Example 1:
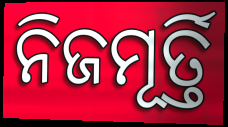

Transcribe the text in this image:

ନିଜମୂର୍ତ୍ତି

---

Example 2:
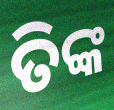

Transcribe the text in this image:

ତିଙ୍କ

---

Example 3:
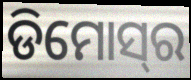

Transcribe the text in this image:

ଡିମୋସ୍‌ର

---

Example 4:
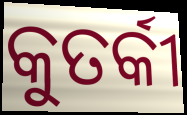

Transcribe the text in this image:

କୁତର୍କୀ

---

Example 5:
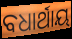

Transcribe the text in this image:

ବଧାର୍ଥାୟ